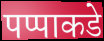
पप्पाकडे